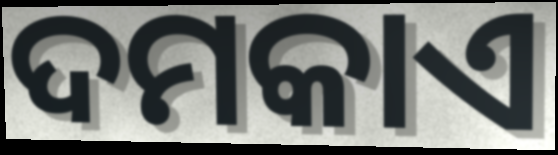
ଦମକାଏ